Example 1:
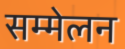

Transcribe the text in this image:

सम्मेलन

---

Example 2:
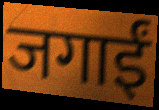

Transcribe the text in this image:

जगाईं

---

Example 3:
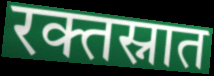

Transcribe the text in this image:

रक्तस्नात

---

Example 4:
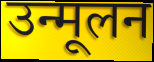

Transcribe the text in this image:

उन्मूलन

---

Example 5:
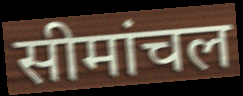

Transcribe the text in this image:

सीमांचल